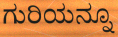
ಗುರಿಯನ್ನೂ